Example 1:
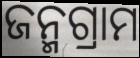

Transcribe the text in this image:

ଜନ୍ମଗ୍ରାମ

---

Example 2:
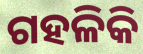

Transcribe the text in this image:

ଗହଳିକି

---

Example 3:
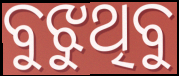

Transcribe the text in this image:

ବୁଝୁଥିବୁ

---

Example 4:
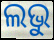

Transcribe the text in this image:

ଲଭୁ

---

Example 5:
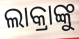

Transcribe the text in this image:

ଲାକ୍ରାଙ୍କୁ